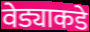
वेड्याकडे